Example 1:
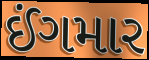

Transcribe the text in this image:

ઈંગમાર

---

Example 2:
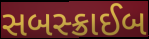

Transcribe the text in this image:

સબસ્ક્રાઈબ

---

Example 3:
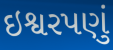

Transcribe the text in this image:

ઇશ્વરપણું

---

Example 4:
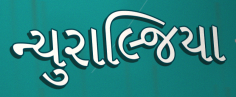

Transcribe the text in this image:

ન્યુરાલ્જિયા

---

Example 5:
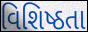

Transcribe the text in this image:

વિશિષ્ઠતા